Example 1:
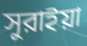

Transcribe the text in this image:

সুরাইয়া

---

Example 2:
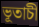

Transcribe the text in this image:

ভূতাচী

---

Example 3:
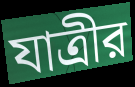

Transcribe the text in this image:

যাত্রীর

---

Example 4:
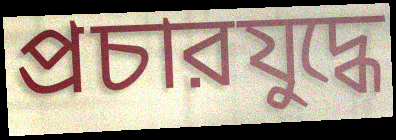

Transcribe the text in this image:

প্রচারযুদ্ধে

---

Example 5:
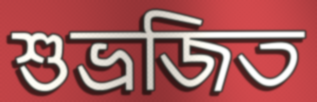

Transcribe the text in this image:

শুভ্রজিত